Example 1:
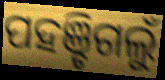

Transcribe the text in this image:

ପହଞ୍ଚିଗଲୁଁ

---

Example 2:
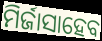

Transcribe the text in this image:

ମିର୍ଜାସାହେବ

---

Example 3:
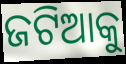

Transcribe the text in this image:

ଜଟିଆକୁ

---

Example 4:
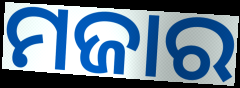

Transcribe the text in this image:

ମଜାର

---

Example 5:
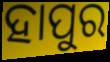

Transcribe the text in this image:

ହାପୁର